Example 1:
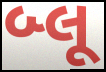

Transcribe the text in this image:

બ્લૂ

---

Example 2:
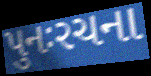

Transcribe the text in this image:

પુનઃરચના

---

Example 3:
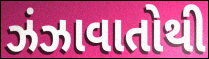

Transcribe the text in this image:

ઝંઝાવાતોથી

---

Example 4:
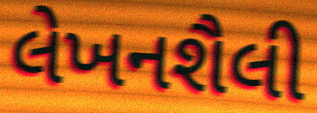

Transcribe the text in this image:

લેખનશૈલી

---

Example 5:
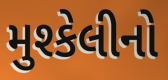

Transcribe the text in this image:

મુશ્કેલીનો